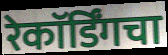
रेकॉर्डिंगचा